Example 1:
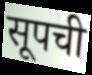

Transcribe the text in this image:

सूपची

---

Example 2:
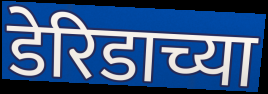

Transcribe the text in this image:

डेरिडाच्या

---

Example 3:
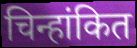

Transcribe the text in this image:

चिन्हांकित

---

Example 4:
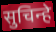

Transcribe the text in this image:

सुचिन्हे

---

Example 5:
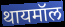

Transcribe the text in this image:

थायमॉल